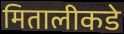
मितालीकडे